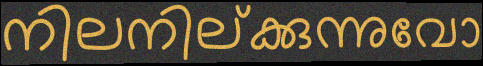
നിലനില്ക്കുന്നുവോ